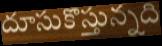
దూసుకొస్తున్నది